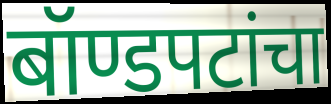
बॉण्डपटांचा